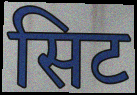
सिट